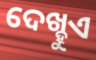
ଦେଖ୍ହୁଏ